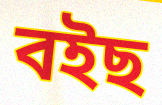
বইছ